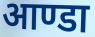
आण्डा